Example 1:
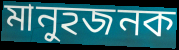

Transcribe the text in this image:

মানুহজনক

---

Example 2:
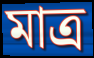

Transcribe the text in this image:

মাত্ৰ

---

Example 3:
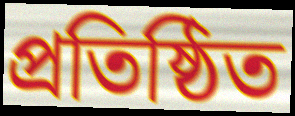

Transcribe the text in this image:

প্ৰতিষ্ঠিত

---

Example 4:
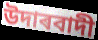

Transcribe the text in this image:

উদাৰবাদী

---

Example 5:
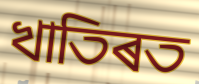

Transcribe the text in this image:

খাতিৰত